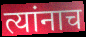
त्यांनाच